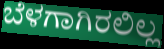
ಬೆಳಗಾಗಿರಲಿಲ್ಲ